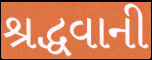
શ્રદ્ધવાની